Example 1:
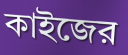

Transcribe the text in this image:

কাইজের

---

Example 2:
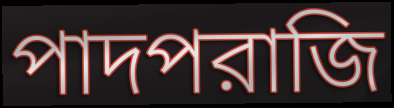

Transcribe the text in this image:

পাদপরাজি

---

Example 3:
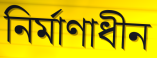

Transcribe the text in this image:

নির্মাণাধীন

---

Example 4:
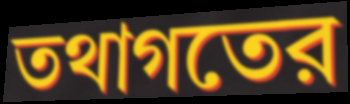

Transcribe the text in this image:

তথাগতের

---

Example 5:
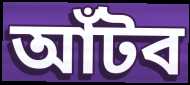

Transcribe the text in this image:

আঁটব